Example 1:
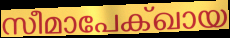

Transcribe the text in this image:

സീമാപേക്ഖായ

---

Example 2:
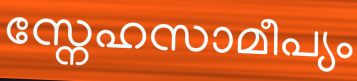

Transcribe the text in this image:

സ്നേഹസാമീപ്യം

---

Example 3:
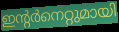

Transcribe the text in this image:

ഇന്റർനെറ്റുമായി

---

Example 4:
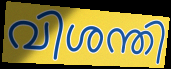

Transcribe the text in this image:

വിശന്തി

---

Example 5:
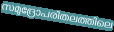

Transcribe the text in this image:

സമുദ്രോപരിതലത്തിലെ